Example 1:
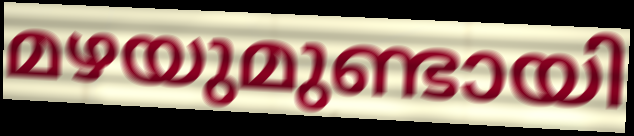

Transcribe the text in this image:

മഴയുമുണ്ടായി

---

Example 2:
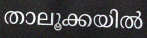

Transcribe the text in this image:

താലൂക്കയിൽ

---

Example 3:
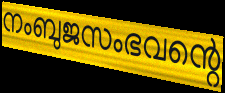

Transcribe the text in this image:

നംബുജസംഭവന്റെ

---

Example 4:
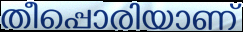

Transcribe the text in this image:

തീപ്പൊരിയാണ്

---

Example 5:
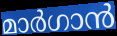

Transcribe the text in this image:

മാർഗാൻ